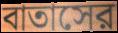
বাতাসের